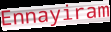
Ennayiram